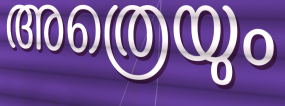
അത്രെയും